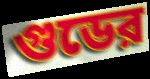
গুডের